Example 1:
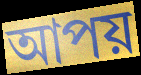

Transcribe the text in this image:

আপয়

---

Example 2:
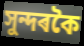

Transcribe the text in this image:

সুন্দৰকৈ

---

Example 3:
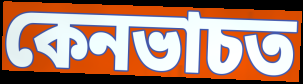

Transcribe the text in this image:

কেনভাচত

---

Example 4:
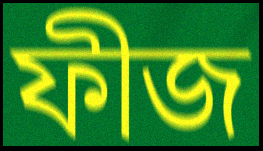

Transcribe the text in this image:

ফীজ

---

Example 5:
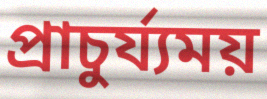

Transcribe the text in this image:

প্ৰাচুৰ্য্যময়